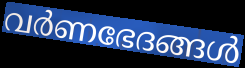
വർണഭേദങ്ങൾ